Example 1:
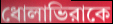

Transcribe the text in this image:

ধোলাভিরাকে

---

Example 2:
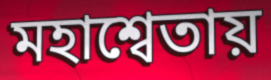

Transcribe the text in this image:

মহাশ্বেতায়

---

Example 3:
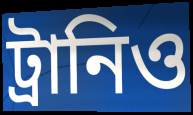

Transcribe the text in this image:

ট্রানিও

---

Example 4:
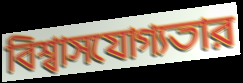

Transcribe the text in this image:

বিশ্বাসযোগ্যতার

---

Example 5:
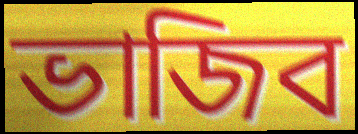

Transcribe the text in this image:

ভাজিব